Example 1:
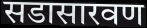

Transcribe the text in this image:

सडासारवण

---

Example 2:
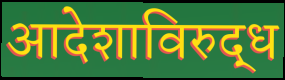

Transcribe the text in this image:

आदेशाविरुद्ध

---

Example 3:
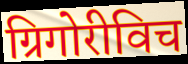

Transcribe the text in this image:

ग्रिगोरीविच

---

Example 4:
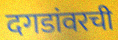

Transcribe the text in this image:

दगडांवरची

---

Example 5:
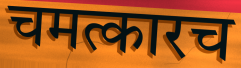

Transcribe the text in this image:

चमत्कारच